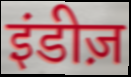
इंडीज़